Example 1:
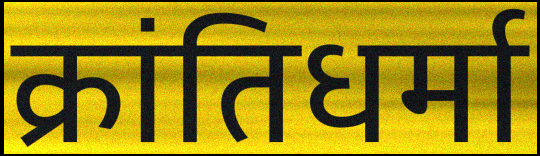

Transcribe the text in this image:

क्रांतिधर्मा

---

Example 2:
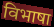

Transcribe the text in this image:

विभाषा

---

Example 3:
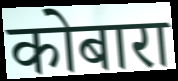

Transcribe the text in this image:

कोबारा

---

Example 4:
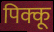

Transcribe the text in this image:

पिक्कू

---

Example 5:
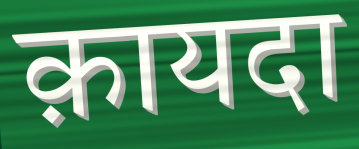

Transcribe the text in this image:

क़ायदा